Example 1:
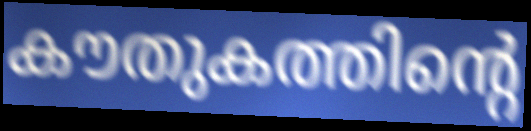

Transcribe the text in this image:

കൗതുകത്തിന്റെ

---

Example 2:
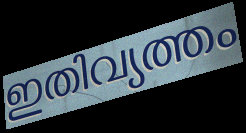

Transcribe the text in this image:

ഇതിവ്യത്തം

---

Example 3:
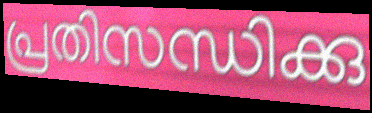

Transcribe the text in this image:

പ്രതിസന്ധിക്കു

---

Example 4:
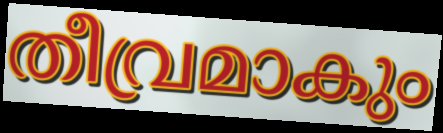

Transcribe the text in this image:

തീവ്രമാകും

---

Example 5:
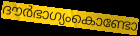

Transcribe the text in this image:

ദൗർഭാഗ്യംകൊണ്ടോ